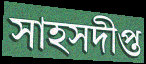
সাহসদীপ্ত